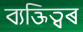
ব্যক্তিত্বৰ